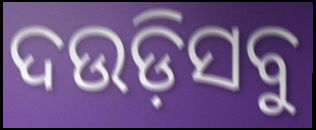
ଦଉଡ଼ିସବୁ